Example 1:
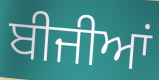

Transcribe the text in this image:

ਬੀਜੀਆਂ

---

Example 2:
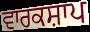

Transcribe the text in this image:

ਵਾਰਕਸ਼ਾਪ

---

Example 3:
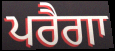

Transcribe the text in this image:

ਪਰੈਗਾ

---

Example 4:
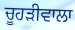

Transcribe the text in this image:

ਚੂਹੜੀਵਾਲਾ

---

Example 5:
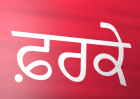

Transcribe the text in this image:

ਫ਼ਰਕੇ